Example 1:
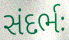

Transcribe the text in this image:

સંદર્ભઃ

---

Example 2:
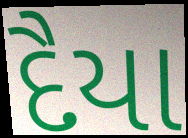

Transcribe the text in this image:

દૈયા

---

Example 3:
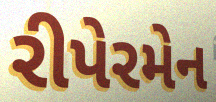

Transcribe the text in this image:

રીપેરમેન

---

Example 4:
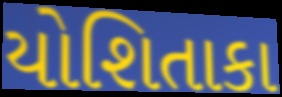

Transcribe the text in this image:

યોશિતાકા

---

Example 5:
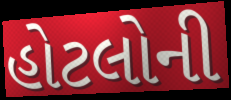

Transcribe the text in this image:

હોટલોની